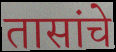
तासांचे